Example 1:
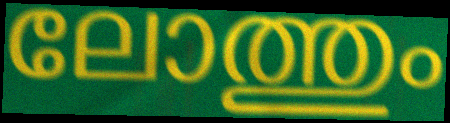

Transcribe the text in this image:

ലോത്തും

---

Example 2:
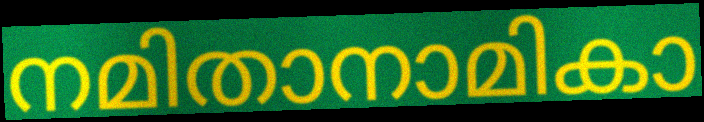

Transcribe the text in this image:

നമിതാനാമികാ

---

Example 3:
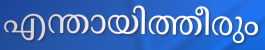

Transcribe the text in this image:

എന്തായിത്തീരും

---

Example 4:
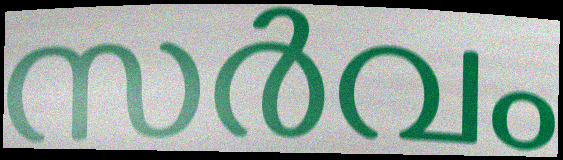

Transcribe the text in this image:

സർവം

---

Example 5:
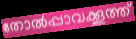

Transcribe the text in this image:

തോൽപ്പാവക്കൂത്ത്